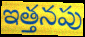
ఇత్తనపు